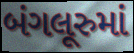
બંગલૂરુમાં